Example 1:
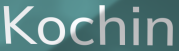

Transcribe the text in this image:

Kochin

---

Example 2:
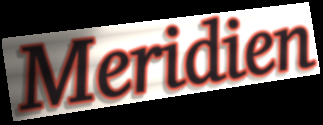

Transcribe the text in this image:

Meridien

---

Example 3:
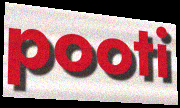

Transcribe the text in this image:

pooti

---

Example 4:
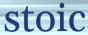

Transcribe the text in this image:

stoic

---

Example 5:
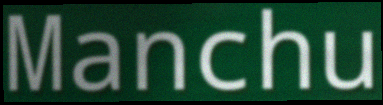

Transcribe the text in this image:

Manchu